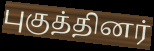
புகுத்தினர்